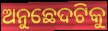
ଅନୁଛେଦଟିକୁ